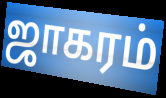
ஜாகரம்